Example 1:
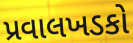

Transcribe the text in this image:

પ્રવાલખડકો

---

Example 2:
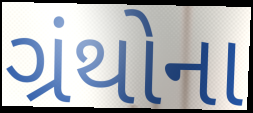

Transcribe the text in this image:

ગ્રંથોના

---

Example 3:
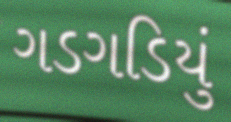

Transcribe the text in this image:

ગડગડિયું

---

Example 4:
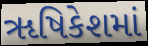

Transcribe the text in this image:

ૠષિકેશમાં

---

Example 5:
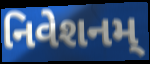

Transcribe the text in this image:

નિવેશનમ્